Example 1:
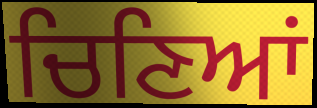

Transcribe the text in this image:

ਚਿਣਿਆਂ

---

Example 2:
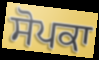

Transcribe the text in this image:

ਸੋਪਕਾ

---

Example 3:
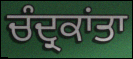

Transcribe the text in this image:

ਚੰਦ੍ਰਕਾਂਤਾ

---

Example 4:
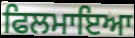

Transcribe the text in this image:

ਫਿਲਮਾਇਆ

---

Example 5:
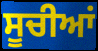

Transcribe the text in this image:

ਸੂਚੀਆਂ